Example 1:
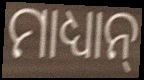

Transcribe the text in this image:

ମାଧ୍ୟାନ୍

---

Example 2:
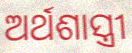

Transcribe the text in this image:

ଅର୍ଥଶାସ୍ତ୍ରୀ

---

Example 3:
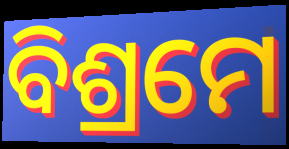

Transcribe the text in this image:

ବିଶ୍ରମେ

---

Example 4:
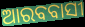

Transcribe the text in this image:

ଆରବବାସୀ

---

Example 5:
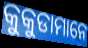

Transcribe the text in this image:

କୁକୁଡାମାନେ